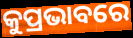
କୁପ୍ରଭାବରେ